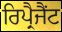
ਰਿਪ੍ਰੈਜੈਂਟ